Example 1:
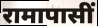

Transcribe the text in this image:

रामापासीं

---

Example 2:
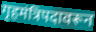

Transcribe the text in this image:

गृहमंत्रिपदावरून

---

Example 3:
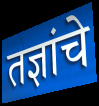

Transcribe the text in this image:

तज्ञांचे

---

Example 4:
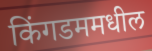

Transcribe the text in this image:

किंगडममधील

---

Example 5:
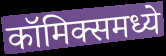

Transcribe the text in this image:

कॉमिक्समध्ये